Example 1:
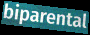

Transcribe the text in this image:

biparental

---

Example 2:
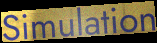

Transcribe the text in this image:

Simulation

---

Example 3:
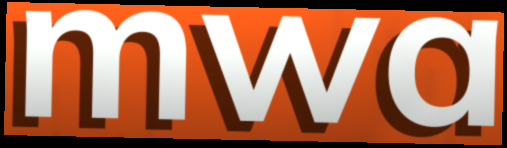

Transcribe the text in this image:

mwa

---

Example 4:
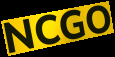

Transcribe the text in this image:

NCGO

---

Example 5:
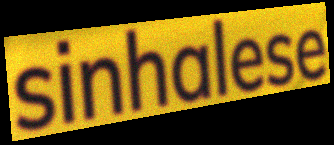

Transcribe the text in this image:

sinhalese